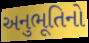
અનુભૂતિનો